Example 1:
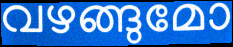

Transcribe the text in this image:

വഴങ്ങുമോ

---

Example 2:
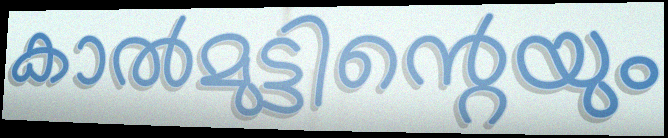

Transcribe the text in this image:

കാൽമുട്ടിന്റെയും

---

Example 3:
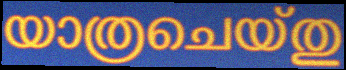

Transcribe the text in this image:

യാത്രചെയ്തു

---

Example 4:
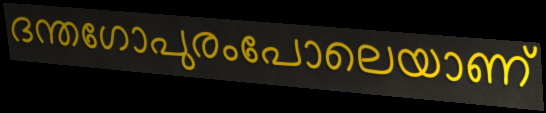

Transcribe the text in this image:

ദന്തഗോപുരംപോലെയാണ്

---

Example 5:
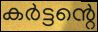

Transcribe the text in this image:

കർട്ടന്റെ